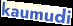
kaumudi